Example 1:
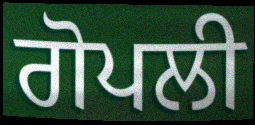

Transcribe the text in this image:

ਗੋਪਲੀ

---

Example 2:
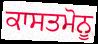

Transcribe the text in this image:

ਕਾਸਤਮੋਨੂ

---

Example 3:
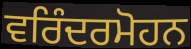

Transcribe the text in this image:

ਵਰਿੰਦਰਮੋਹਨ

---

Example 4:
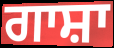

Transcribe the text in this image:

ਗਾਸ਼ਾ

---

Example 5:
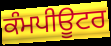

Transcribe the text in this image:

ਕੰਮਪੀਊਟਰ